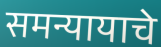
समन्यायाचे